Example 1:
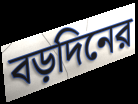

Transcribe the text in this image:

বড়দিনের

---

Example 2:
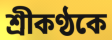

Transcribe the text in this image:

শ্রীকণ্ঠকে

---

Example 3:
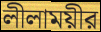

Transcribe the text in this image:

লীলাময়ীর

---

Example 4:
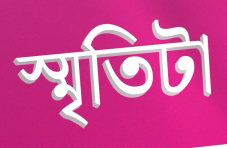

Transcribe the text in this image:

স্মৃতিটা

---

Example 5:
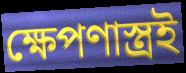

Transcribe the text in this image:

ক্ষেপণাস্ত্রই